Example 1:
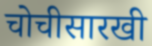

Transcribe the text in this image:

चोचीसारखी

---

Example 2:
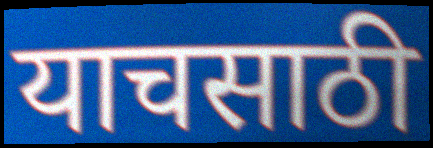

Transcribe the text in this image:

याचसाठी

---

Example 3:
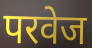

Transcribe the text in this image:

परवेज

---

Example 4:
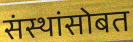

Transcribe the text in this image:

संस्थांसोबत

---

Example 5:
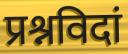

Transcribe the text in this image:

प्रश्नविदां